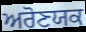
ਅਰੋਣਯਕ